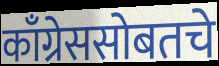
काँग्रेससोबतचे